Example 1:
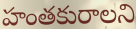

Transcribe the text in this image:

హంతకురాలని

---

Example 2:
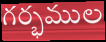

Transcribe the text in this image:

గర్భముల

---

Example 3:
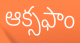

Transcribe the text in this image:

ఆక్సఫాం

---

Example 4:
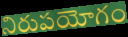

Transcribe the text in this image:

నిరుపయోగం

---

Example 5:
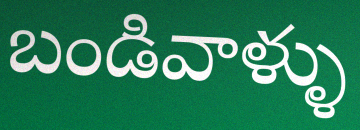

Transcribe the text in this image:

బండివాళ్ళు